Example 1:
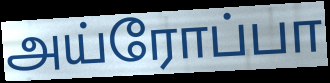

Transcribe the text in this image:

அய்ரோப்பா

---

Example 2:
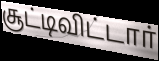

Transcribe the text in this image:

சூட்டிவிட்டார்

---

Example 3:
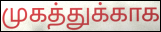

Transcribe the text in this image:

முகத்துக்காக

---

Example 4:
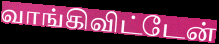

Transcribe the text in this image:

வாங்கிவிட்டேன்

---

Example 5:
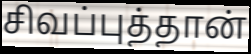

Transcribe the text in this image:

சிவப்புத்தான்